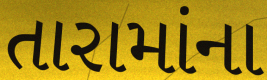
તારામાંના